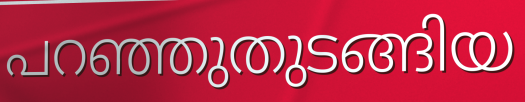
പറഞ്ഞുതുടങ്ങിയ